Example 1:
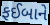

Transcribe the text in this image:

ફઈબાને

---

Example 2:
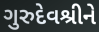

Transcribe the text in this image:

ગુરુદેવશ્રીને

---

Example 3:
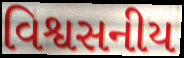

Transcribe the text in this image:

વિશ્વસનીય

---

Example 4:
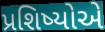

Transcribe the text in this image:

પ્રશિષ્યોએ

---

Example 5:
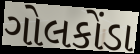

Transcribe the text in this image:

ગોલકોંડા